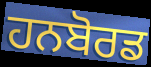
ਹਨਬੋਰਡ